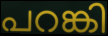
പറങ്കി